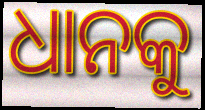
ଧାନକୁ